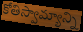
కోతిస్వామ్యాన్ని